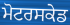
ਮੋਟਰਸਕੇਡ